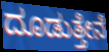
ದೂಡುತ್ತೇನೆ